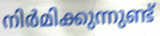
നിർമിക്കുന്നുണ്ട്